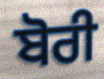
ਬੋਰੀ